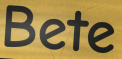
Bete